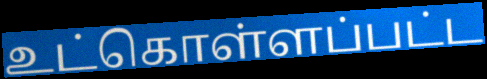
உட்கொள்ளப்பட்ட